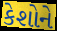
કેશોને